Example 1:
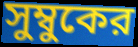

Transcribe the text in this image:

সুম্বুকের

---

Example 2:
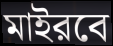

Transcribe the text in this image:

মাইরবে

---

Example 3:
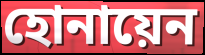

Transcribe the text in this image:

হোনায়েন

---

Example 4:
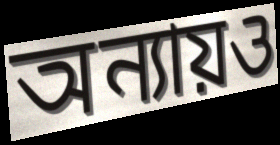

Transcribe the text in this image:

অন্যায়ও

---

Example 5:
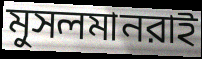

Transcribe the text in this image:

মুসলমানরাই